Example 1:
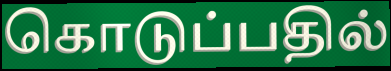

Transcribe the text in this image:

கொடுப்பதில்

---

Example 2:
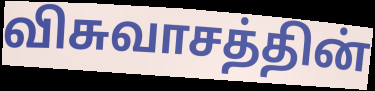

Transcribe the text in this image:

விசுவாசத்தின்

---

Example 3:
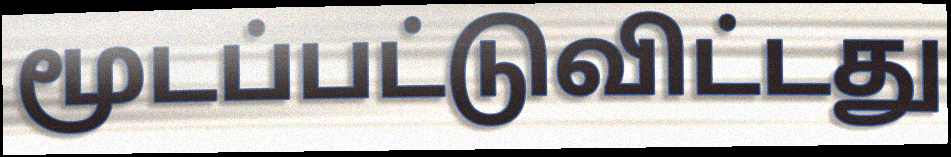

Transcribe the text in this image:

மூடப்பட்டுவிட்டது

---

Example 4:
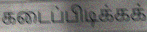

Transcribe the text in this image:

கடைப்பிடிக்கக்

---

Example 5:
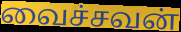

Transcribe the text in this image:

வைச்சவன்